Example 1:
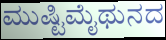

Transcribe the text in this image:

ಮುಷ್ಟಿಮೈಥುನದ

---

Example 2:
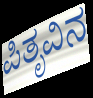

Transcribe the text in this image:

ಪಿತೃವಿನ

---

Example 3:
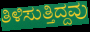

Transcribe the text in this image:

ತಿಳಿಸುತ್ತಿದ್ದವು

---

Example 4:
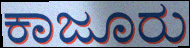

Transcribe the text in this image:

ಕಾಜೂರು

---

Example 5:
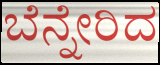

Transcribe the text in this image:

ಬೆನ್ನೇರಿದ